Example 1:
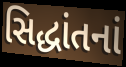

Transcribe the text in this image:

સિદ્ધાંતનાં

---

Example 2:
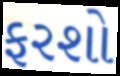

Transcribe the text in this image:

ફરશો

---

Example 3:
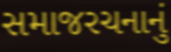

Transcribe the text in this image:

સમાજરચનાનું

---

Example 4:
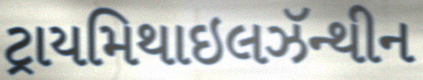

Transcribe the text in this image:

ટ્રાયમિથાઇલઝૅન્થીન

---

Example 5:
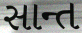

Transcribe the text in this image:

સાન્ત